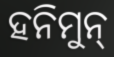
ହନିମୁନ୍